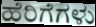
ಹೆರಿಗೆಗಳು